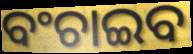
ବଂଚାଇବ